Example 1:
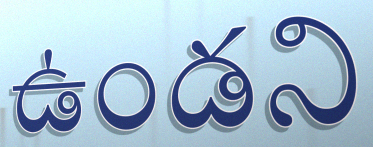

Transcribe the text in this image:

ఉండని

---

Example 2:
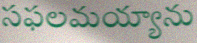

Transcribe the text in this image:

సఫలమయ్యాను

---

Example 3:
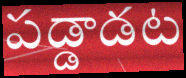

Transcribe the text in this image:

పడ్డాడట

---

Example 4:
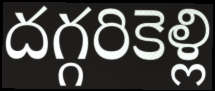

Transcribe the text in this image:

దగ్గరికెళ్లి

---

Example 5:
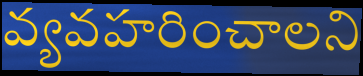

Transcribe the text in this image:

వ్యవహరించాలని